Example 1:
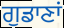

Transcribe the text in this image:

ਗੁਡਾਣਾਂ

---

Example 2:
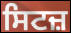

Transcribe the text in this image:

ਸਿਟਜ਼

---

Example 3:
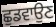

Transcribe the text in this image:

ਛੁਡਵਾਉਣ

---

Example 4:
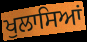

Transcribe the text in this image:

ਖੁਲਾਸਿਆਂ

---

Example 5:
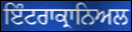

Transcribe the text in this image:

ਇੰਟਰਾਕ੍ਰਾਨਿਅਲ